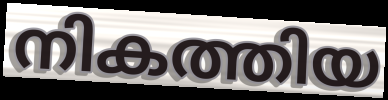
നികത്തിയ